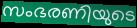
സംഭരണിയുടെ